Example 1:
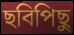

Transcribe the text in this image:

ছবিপিছু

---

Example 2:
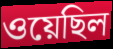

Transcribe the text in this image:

ওয়েছিল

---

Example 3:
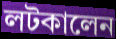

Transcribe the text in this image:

লটকালেন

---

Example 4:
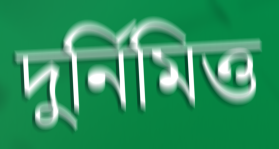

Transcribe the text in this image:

দুর্নিমিত্ত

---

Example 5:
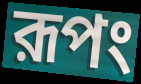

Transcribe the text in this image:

রূপং